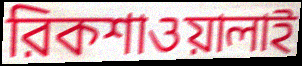
রিকশাওয়ালাই